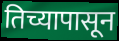
तिच्यापासून